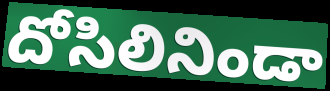
దోసిలినిండా